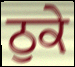
ਠੁਕੇ